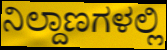
ನಿಲ್ದಾಣಗಳಲ್ಲಿ